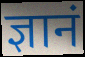
ज्ञानं